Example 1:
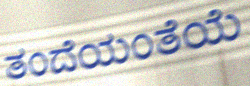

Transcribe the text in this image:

ತಂದೆಯಂತೆಯೆ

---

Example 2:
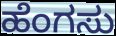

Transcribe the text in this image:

ಹೆಂಗಸು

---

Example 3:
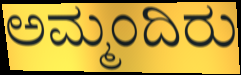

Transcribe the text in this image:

ಅಮ್ಮಂದಿರು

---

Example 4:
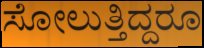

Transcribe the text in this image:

ಸೋಲುತ್ತಿದ್ದರೂ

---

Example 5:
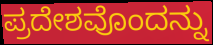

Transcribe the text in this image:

ಪ್ರದೇಶವೊಂದನ್ನು